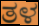
ತಳ